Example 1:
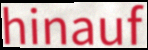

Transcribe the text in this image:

hinauf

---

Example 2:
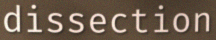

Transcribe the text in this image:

dissection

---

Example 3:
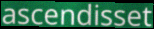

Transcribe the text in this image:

ascendisset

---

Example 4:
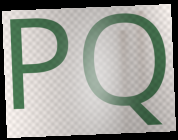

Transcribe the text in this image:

PQ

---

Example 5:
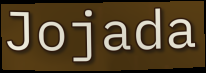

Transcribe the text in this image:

Jojada